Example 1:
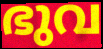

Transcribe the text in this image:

ഭുവ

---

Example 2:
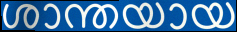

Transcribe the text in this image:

ശാന്തയായ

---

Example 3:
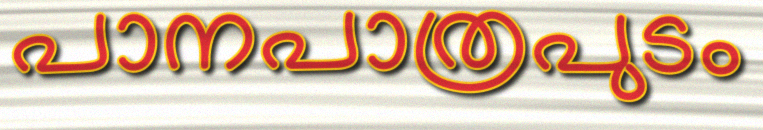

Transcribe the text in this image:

പാനപാത്രപുടം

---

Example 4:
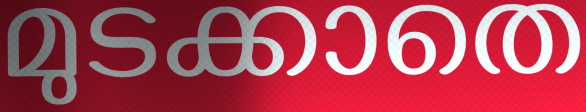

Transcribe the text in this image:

മുടക്കാതെ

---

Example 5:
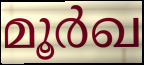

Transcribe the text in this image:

മൂർഖ